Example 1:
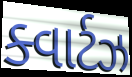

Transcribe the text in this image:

ક્વાર્ટઝ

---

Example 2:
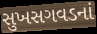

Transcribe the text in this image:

સુખસગવડનાં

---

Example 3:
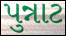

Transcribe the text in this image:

પુન્નાટ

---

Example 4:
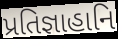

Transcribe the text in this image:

પ્રતિજ્ઞાહાનિ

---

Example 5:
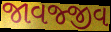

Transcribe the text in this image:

જાવજ્જીવ